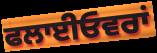
ਫਲਾਈਓਵਰਾਂ